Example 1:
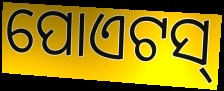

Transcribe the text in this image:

ପୋଏଟସ୍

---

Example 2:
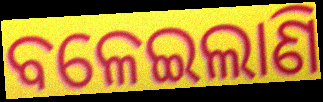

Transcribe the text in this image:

ବଳେଇଲାଣି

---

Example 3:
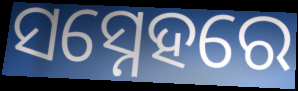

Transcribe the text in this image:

ସସ୍ନେହରେ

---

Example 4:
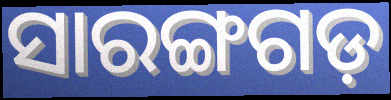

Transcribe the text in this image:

ସାରଙ୍ଗଗଡ଼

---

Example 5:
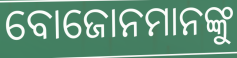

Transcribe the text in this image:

ବୋଜୋନମାନଙ୍କୁ